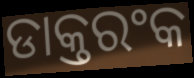
ଡାକ୍ତରଂକ